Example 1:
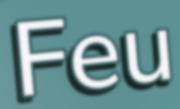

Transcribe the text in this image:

Feu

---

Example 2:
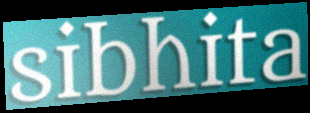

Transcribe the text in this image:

sibhita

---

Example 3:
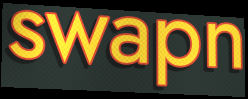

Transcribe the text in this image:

swapn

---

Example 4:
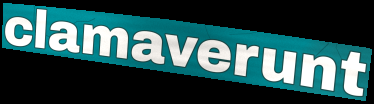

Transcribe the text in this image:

clamaverunt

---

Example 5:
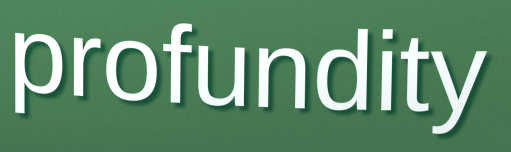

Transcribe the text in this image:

profundity